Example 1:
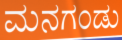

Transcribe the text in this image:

ಮನಗಂಡು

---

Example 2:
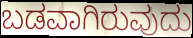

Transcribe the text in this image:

ಬಡವಾಗಿರುವುದು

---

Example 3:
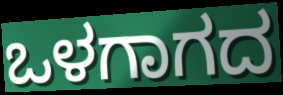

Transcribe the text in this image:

ಒಳಗಾಗದ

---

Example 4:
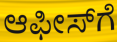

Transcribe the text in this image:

ಆಫೀಸ್‍ಗೆ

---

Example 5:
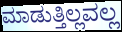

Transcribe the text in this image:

ಮಾಡುತ್ತಿಲ್ಲವಲ್ಲ